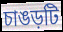
চাঙড়টি